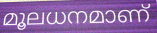
മൂലധനമാണ്